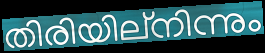
തിരിയില്നിന്നും